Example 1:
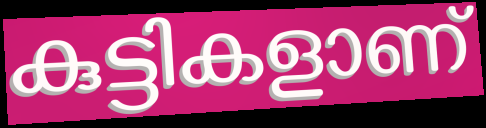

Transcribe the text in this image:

കുട്ടികളാണ്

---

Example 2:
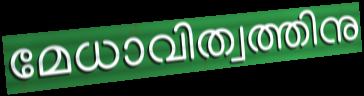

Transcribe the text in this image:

മേധാവിത്വത്തിനു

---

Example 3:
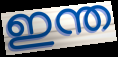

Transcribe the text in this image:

ഇന്ത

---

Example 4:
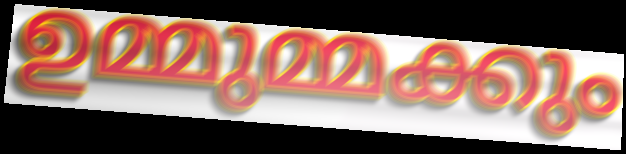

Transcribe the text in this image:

ഉമ്മുമ്മക്കും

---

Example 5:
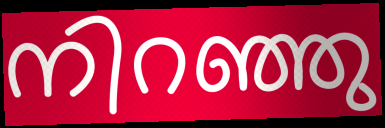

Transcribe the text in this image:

നിറഞ്ഞു